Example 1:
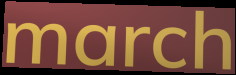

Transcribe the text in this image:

march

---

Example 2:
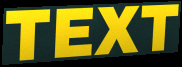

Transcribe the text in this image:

TEXT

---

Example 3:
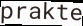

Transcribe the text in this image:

prakte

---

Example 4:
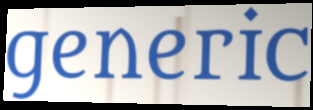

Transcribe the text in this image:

generic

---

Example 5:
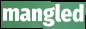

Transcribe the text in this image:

mangled